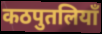
कठपुतलियाँ